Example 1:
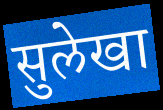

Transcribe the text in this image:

सुलेखा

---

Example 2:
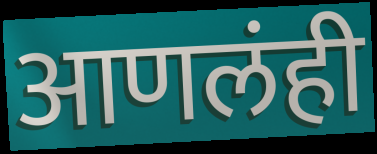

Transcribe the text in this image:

आणलंही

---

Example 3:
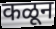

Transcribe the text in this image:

कळून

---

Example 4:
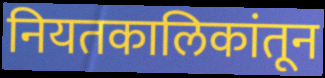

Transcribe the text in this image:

नियतकालिकांतून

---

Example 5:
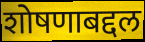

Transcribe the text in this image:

शोषणाबद्दल